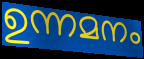
ഉന്നമനം